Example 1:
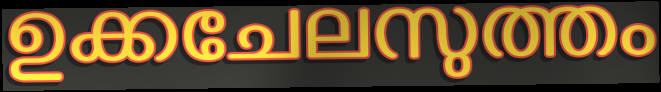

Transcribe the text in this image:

ഉക്കചേലസുത്തം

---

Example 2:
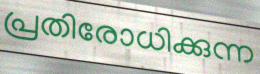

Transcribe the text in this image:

പ്രതിരോധിക്കുന്ന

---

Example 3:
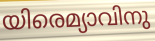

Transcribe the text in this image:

യിരെമ്യാവിനു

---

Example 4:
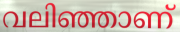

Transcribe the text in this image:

വലിഞ്ഞാണ്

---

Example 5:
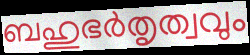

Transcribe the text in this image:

ബഹുഭർതൃത്വവും